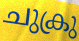
ചുക്രു